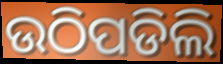
ଉଠିପଡିଲି